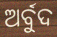
ଅର୍ବୁଦ